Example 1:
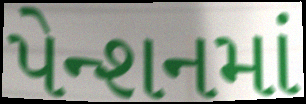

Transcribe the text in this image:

પેન્શનમાં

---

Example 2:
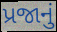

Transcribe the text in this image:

પ્રજાનું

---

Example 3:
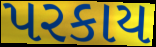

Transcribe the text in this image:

પરકાય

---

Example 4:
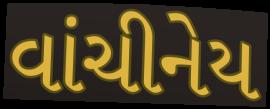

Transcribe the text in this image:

વાંચીનેય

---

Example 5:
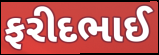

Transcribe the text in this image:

ફરીદભાઈ